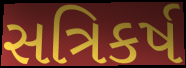
સત્રિકર્ષ